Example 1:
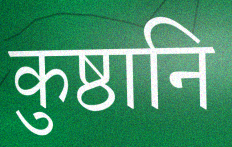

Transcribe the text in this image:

कुष्ठानि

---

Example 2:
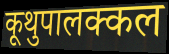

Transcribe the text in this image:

कूथुपालक्कल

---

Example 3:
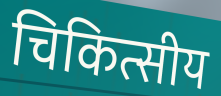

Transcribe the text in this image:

चिकित्सीय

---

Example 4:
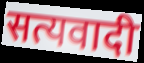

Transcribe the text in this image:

सत्यवादी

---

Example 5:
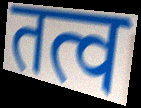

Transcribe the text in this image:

तत्व